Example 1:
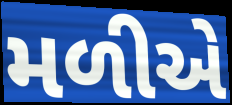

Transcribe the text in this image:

મળીએ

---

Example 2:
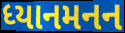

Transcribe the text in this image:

ધ્યાનમનન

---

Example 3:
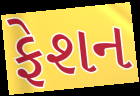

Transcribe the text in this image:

ફેશન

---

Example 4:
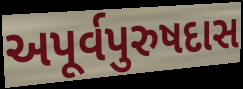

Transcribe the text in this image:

અપૂર્વપુરુષદાસ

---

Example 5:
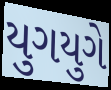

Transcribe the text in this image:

યુગયુગે